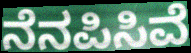
ನೆನಪಿಸಿವೆ